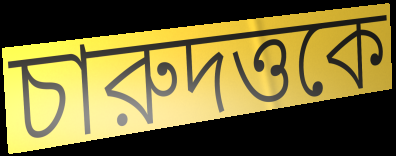
চারুদত্তকে